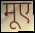
मूए